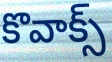
కొవాక్స్